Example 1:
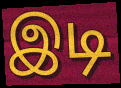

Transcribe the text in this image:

இடி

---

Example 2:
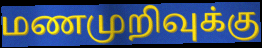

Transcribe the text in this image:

மணமுறிவுக்கு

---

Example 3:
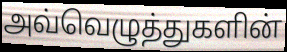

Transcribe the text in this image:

அவ்வெழுத்துகளின்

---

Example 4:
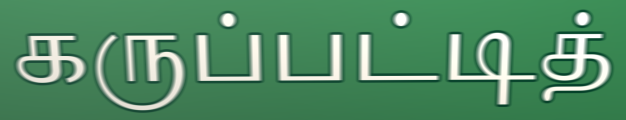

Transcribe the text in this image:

கருப்பட்டித்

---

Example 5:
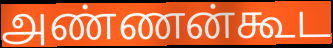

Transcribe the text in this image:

அண்ணன்கூட